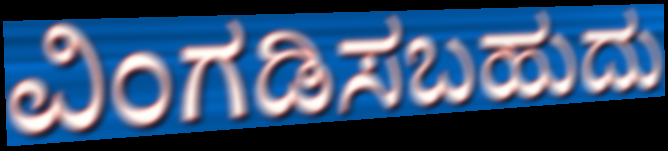
ವಿಂಗಡಿಸಬಹುದು